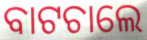
ବାଟଚାଲେ